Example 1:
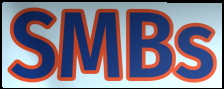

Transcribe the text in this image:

SMBs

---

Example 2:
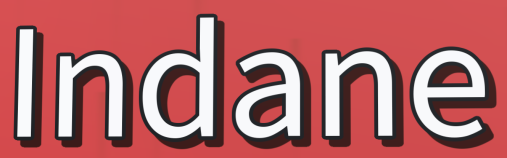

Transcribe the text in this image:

Indane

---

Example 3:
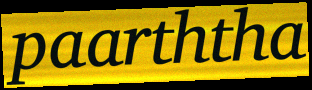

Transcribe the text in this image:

paarththa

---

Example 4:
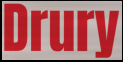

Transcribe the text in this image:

Drury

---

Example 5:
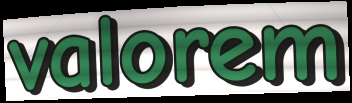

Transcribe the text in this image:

valorem